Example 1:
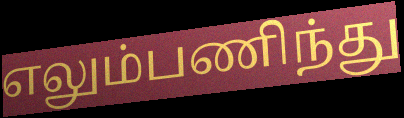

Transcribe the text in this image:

எலும்பணிந்து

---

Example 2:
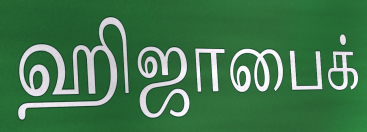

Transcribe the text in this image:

ஹிஜாபைக்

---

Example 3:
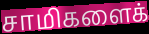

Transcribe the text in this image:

சாமிகளைக்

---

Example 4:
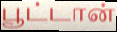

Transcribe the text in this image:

பூட்டான்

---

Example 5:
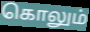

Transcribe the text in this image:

கொலும்